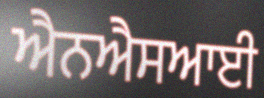
ਐਨਐਸਆਈ